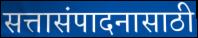
सत्तासंपादनासाठी